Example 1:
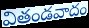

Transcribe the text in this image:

వితండవాదం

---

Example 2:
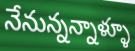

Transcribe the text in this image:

నేనున్నన్నాళ్ళూ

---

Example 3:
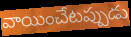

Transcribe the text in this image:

వాయించేటప్పుడు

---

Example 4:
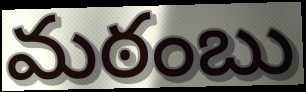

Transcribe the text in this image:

మఠంబు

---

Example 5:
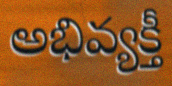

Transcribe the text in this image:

అభివ్యక్తీ